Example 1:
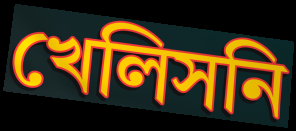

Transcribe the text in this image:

খেলিসনি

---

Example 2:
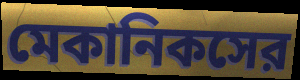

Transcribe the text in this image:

মেকানিকসের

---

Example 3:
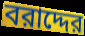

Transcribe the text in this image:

বরাদ্দের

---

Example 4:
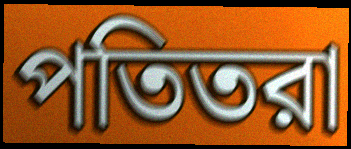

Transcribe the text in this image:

পতিতরা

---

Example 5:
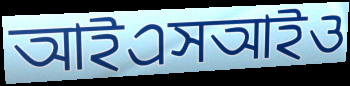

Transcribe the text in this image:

আইএসআইও